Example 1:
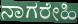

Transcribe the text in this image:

ನಾಗರೇಹಿ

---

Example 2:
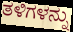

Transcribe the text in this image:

ತಳಿಗಳನ್ನು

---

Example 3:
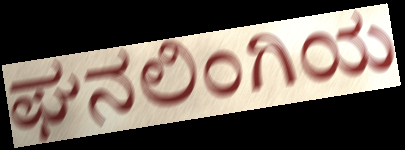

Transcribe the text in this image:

ಘನಲಿಂಗಿಯ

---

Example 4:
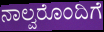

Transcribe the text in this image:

ನಾಲ್ವರೊಂದಿಗೆ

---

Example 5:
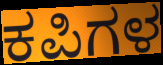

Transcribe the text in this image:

ಕಪಿಗಳ